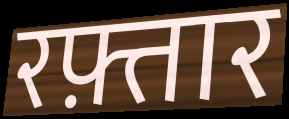
रफ़्तार